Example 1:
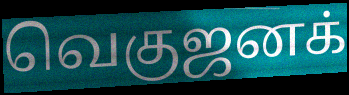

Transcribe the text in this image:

வெகுஜனக்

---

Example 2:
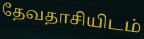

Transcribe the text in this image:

தேவதாசியிடம்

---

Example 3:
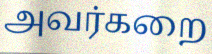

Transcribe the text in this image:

அவர்கறை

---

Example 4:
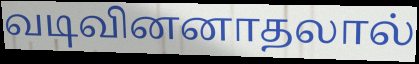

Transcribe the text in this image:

வடிவினனாதலால்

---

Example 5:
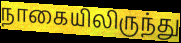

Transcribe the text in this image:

நாகையிலிருந்து